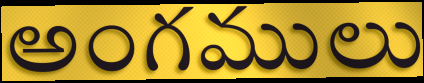
అంగములు